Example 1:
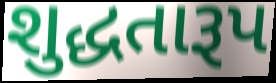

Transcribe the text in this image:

શુદ્ધતારૂપ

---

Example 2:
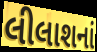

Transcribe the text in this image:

લીલાશનાં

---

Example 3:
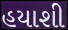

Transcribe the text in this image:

હયાશી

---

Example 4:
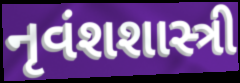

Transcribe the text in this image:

નૃવંશશાસ્ત્રી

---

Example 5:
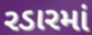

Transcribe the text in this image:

રડારમાં